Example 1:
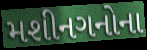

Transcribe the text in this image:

મશીનગનોના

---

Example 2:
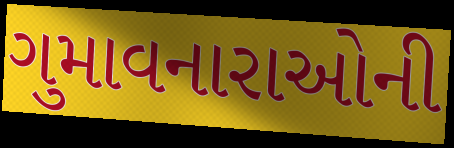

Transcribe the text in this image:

ગુમાવનારાઓની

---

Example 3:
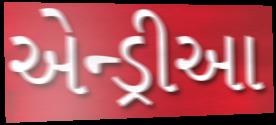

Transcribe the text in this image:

એન્ડ્રીઆ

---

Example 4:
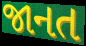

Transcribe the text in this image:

જાનત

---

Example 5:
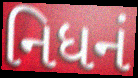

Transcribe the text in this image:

નિધનં